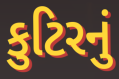
કુટિરનું